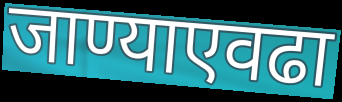
जाण्याएवढा